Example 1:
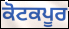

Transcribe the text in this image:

ਕੋਟਕਪੂਰ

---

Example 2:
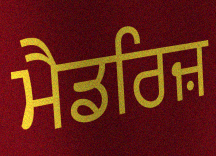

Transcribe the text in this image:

ਮੈਡਰਿਜ਼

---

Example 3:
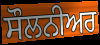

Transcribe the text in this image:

ਸੌਲਨੀਅਰ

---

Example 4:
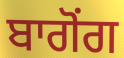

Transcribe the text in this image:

ਬਾਗੋਂਗ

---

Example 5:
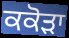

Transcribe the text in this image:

ਕਕੋੜਾ